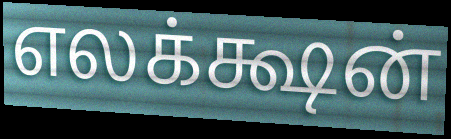
எலக்க்ஷன்